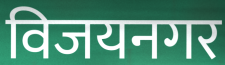
विजयनगर